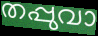
തപ്പുവാ